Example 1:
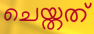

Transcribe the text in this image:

ചെയ്തത്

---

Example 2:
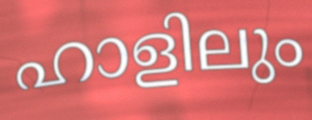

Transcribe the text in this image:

ഹാളിലും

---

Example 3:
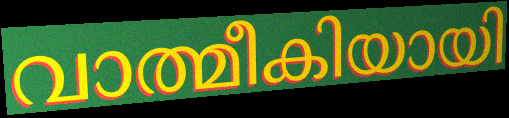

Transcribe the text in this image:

വാത്മീകിയായി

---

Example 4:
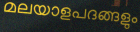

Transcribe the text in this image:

മലയാളപദങ്ങളും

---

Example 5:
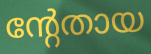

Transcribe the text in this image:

ന്റേതായ